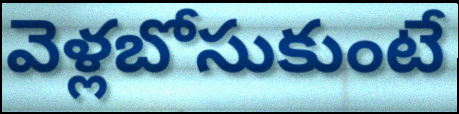
వెళ్లబోసుకుంటే